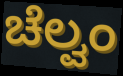
ಚೆಲ್ವಂ